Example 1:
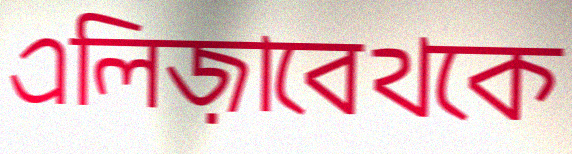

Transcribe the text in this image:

এলিজ়াবেথকে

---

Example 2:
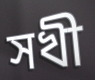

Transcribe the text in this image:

সখী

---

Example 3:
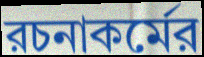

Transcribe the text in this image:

রচনাকর্মের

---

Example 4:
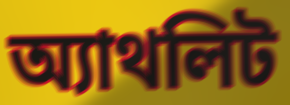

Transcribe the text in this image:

অ্যাথলিট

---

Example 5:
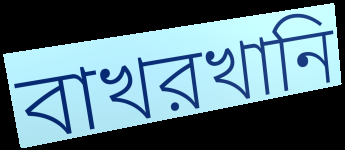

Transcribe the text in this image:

বাখরখানি